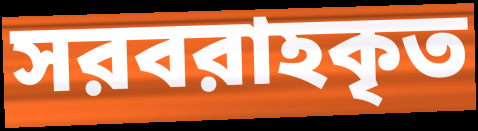
সরবরাহকৃত